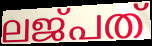
ലജ്പത്